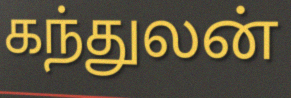
கந்துலன்